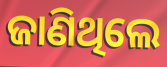
ଜାଣିଥିଲେ